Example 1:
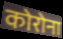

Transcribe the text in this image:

कोरोना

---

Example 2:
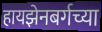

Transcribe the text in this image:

हायझेनबर्गच्या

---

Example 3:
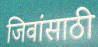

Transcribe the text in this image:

जिवांसाठी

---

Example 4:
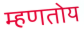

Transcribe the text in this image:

म्हणतोय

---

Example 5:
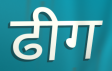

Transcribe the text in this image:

ढीग